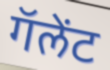
गॅलेंट